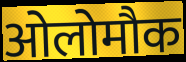
ओलोमौक